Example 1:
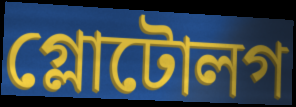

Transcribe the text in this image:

গ্লোটোলগ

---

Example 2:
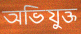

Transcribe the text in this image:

অভিযুক্ত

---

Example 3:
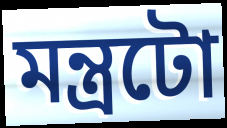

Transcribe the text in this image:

মন্ত্ৰটো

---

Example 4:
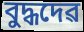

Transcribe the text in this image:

বুদ্ধদেৱ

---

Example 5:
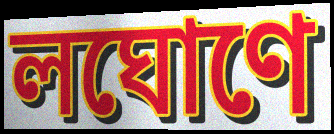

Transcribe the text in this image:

লঘোণে